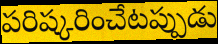
పరిష్కరించేటప్పుడు